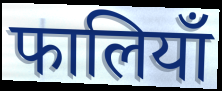
फालियाँ